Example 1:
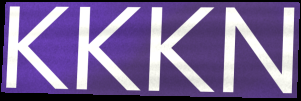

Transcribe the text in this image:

KKKN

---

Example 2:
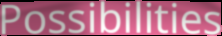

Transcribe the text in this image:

Possibilities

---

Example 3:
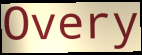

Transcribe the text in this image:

Overy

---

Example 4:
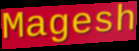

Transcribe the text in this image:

Magesh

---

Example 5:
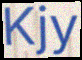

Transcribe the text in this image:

Kjy